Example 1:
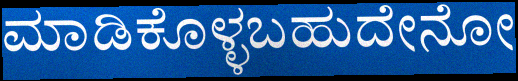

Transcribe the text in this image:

ಮಾಡಿಕೊಳ್ಳಬಹುದೇನೋ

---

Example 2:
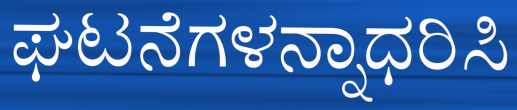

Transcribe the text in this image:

ಘಟನೆಗಳನ್ನಾಧರಿಸಿ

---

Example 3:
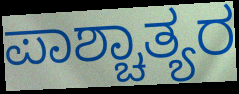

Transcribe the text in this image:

ಪಾಶ್ಚಾತ್ಯರ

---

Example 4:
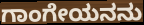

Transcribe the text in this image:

ಗಾಂಗೇಯನನು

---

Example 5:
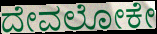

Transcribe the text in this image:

ದೇವಲೋಕೇ